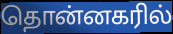
தொன்னகரில்